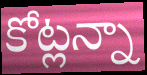
కోట్లన్నా